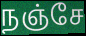
நஞ்சே